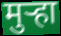
मुऱ्हा